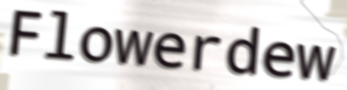
Flowerdew